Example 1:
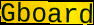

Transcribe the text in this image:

Gboard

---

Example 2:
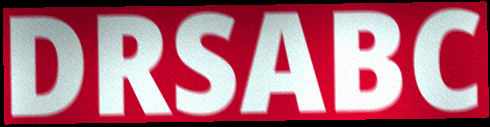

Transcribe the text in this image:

DRSABC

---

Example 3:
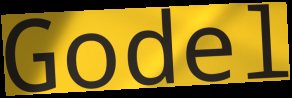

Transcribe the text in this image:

Godel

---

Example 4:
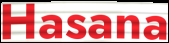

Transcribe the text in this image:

Hasana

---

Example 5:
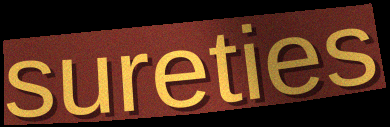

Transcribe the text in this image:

sureties